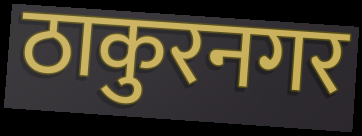
ठाकुरनगर